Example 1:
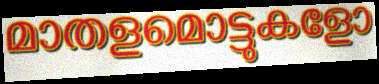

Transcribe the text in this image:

മാതളമൊട്ടുകളോ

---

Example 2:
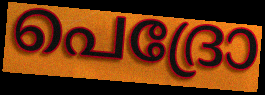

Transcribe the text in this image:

പെദ്രോ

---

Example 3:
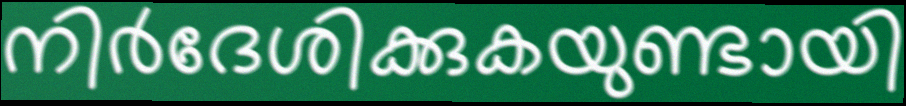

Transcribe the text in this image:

നിർദേശിക്കുകയുണ്ടായി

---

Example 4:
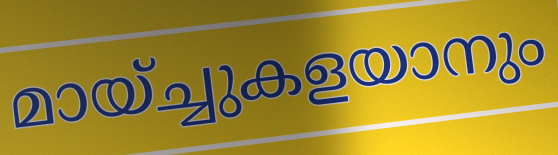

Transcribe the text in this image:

മായ്ച്ചുകളയാനും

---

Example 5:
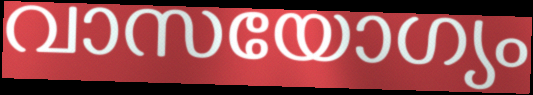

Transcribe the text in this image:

വാസയോഗ്യം